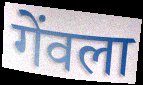
गेंवला